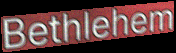
Bethlehem